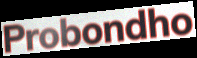
Probondho